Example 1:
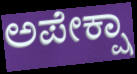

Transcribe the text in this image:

ಅಪೇಕ್ಷಾ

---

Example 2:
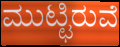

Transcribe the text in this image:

ಮುಟ್ಟಿರುವೆ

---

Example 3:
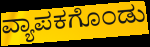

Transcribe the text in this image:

ವ್ಯಾಪಕಗೊಂಡು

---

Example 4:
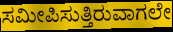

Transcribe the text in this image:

ಸಮೀಪಿಸುತ್ತಿರುವಾಗಲೇ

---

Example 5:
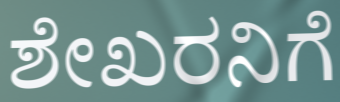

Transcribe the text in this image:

ಶೇಖರನಿಗೆ